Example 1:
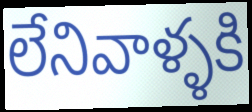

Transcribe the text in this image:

లేనివాళ్ళకి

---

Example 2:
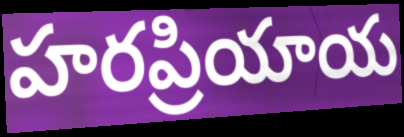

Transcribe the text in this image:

హరప్రియాయ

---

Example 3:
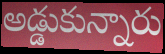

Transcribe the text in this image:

అడ్డుకున్నారు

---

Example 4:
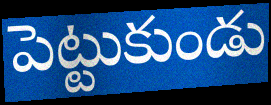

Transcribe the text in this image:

పెట్టుకుండు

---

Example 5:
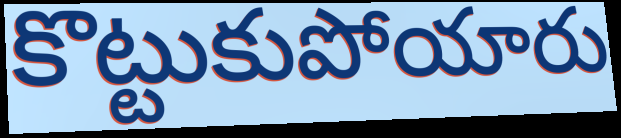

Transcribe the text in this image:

కొట్టుకుపోయారు